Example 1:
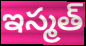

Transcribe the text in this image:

ఇస్మత్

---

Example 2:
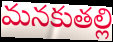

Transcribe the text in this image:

మనకుతల్లి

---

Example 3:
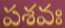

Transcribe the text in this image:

పశవః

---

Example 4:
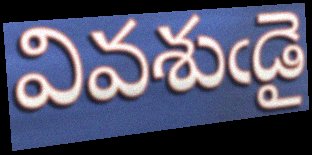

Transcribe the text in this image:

వివశుఁడై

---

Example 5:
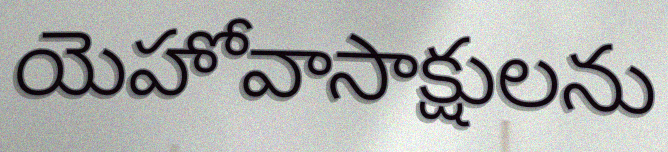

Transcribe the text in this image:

యెహోవాసాక్షులను